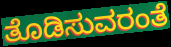
ತೊಡಿಸುವರಂತೆ